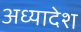
अध्यादेश